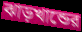
ঝাড়খান্ডের